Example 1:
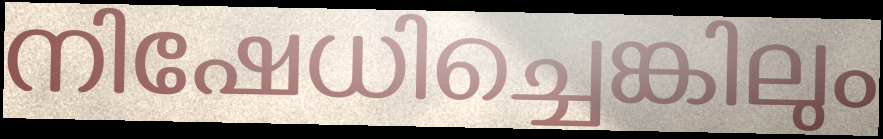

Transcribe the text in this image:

നിഷേധിച്ചെങ്കിലും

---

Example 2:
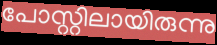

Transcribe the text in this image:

പോസ്റ്റിലായിരുന്നു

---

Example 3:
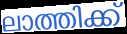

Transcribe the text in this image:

ലാത്തിക്ക്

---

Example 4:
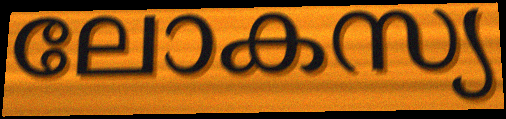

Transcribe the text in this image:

ലോകസ്യ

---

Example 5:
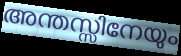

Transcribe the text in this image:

അന്തസ്സിനേയും